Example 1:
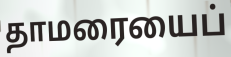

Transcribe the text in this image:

தாமரையைப்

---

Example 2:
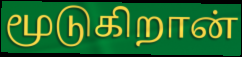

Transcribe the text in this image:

மூடுகிறான்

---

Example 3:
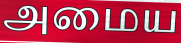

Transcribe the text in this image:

அமைய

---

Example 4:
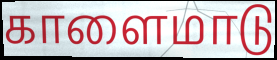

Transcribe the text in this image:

காளைமாடு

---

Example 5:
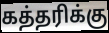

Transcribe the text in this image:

கத்தரிக்கு